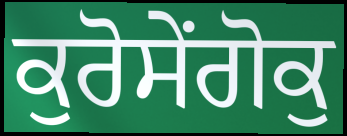
ਕੁਰੋਸੇਂਗੋਕੁ